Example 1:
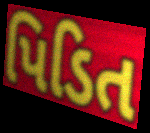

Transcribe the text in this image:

પિડિત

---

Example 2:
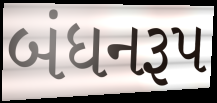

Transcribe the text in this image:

બંધનરૂપ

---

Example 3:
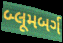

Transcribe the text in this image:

બ્લૂમબર્ગ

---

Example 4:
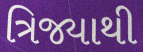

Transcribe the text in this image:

ત્રિજ્યાથી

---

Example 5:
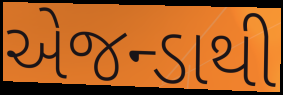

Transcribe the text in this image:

એજન્ડાથી